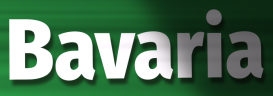
Bavaria